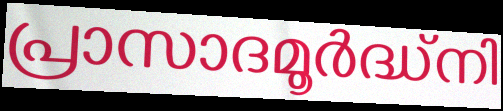
പ്രാസാദമൂർദ്ധ്നി